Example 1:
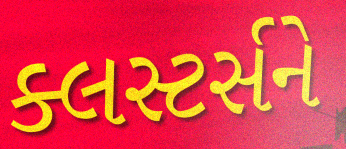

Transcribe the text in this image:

ક્લસ્ટર્સને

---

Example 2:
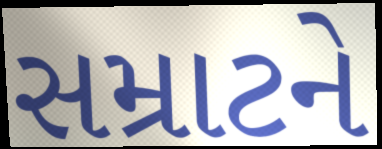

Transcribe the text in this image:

સમ્રાટને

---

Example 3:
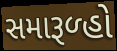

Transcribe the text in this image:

સમારૂળ્હો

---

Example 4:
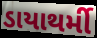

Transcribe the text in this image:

ડાયાથર્મી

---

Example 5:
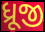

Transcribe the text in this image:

ધ્રૂજી